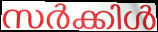
സർക്കിൾ